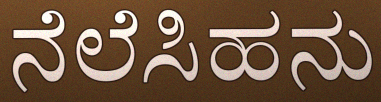
ನೆಲೆಸಿಹನು